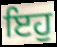
ਇਹੁ